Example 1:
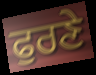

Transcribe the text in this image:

ਫੁਰਣੇ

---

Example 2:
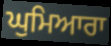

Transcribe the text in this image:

ਘੁਮਿਆਰਾ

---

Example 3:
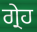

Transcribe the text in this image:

ਗ੍ਰੇਹ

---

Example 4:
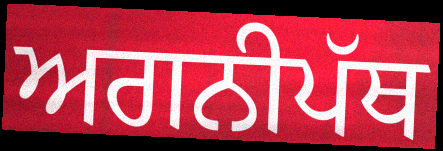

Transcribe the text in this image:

ਅਗਨੀਪੱਥ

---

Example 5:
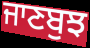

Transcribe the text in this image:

ਜਾਣਬੁਝ